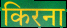
किरना